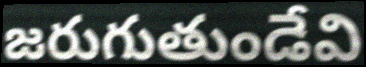
జరుగుతుండేవి